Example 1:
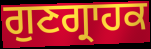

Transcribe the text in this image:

ਗੁਣਗ੍ਰਾਹਕ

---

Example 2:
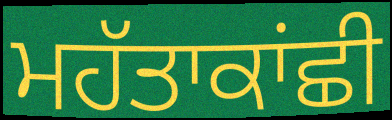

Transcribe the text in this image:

ਮਹੱਤਾਕਾਂਛੀ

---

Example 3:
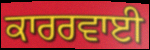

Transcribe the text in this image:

ਕਾਰਰਵਾਈ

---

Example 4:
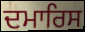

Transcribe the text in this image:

ਦਮਾਰਿਸ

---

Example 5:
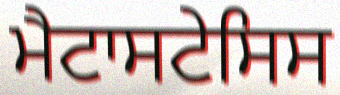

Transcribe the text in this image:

ਮੈਟਾਸਟੇਸਿਸ